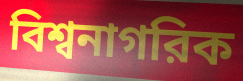
বিশ্বনাগরিক